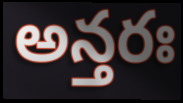
అన్తరః